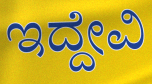
ಇದ್ದೇವಿ